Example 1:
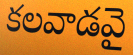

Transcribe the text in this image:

కలవాడవై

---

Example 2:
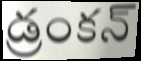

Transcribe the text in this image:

డ్రంకన్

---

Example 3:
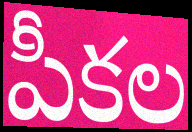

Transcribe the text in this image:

పీకల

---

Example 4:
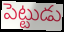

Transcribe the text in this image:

పెట్టుడు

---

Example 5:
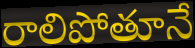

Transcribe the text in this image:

రాలిపోతూనే